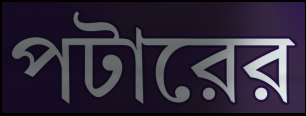
পটারের